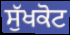
ਸੁੱਖਕੋਟ